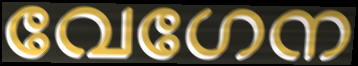
വേഗേന